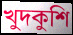
খুদকুশি